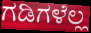
ಗಡಿಗಳೆಲ್ಲ